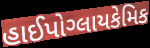
હાઈપોગ્લાયકેમિક